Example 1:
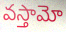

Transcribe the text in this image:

వస్తామో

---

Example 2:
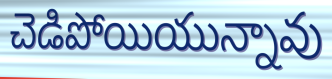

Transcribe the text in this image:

చెడిపోయియున్నావు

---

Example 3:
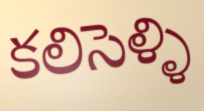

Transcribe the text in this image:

కలిసెళ్ళి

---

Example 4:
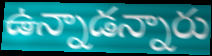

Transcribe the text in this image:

ఉన్నాడన్నారు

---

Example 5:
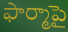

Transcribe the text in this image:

ఫార్మాపై